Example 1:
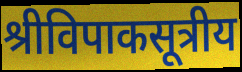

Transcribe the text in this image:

श्रीविपाकसूत्रीय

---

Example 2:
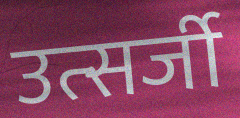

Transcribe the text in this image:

उत्सर्जी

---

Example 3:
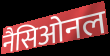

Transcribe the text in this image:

नैसिओनल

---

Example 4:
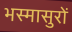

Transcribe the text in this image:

भस्मासुरों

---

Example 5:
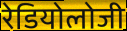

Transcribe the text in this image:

रेडियोलोजी